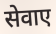
सेवाए